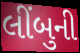
લીંબુની